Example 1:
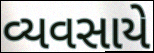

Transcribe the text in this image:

વ્યવસાયે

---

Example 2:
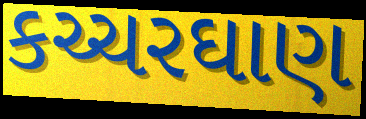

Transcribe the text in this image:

કચ્ચરઘાણ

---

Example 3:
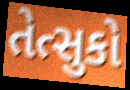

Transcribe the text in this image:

તેત્સુકો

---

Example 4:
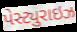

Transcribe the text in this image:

પેસ્ટ્યુરાઇઝ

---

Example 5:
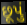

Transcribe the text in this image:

છૂપું